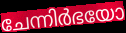
ചേന്നിർഭയോ